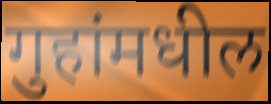
गुहांमधील